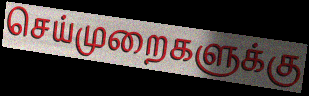
செய்முறைகளுக்கு